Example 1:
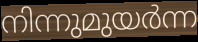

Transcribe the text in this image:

നിന്നുമുയർന്ന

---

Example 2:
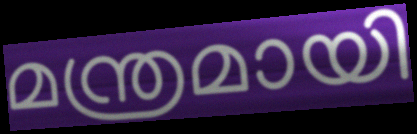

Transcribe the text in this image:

മന്ത്രമായി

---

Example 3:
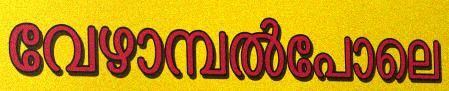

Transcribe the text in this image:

വേഴാമ്പൽപോലെ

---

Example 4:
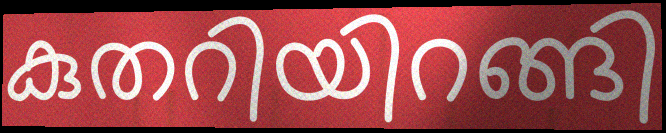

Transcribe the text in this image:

കുതറിയിറങ്ങി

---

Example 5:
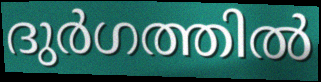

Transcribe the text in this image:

ദുർഗത്തിൽ